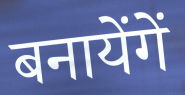
बनायेंगें